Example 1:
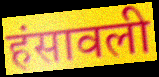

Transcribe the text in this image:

हंसावली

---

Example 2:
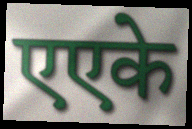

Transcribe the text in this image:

एएके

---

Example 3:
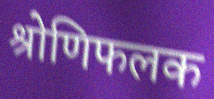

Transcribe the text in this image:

श्रोणिफलक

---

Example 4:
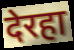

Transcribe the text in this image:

देरहा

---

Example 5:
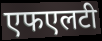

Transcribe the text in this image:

एफएलटी